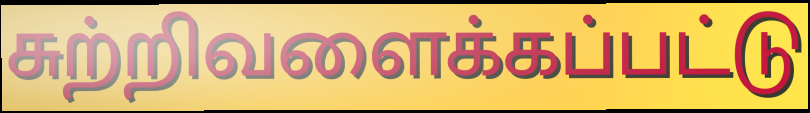
சுற்றிவளைக்கப்பட்டு